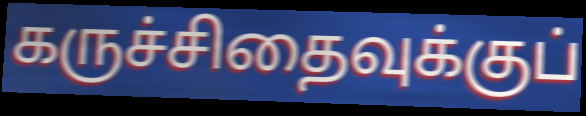
கருச்சிதைவுக்குப்